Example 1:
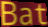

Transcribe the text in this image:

Bat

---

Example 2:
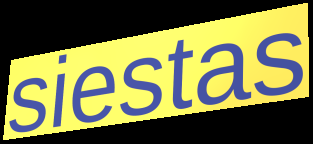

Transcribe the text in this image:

siestas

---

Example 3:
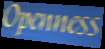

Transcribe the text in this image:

Openness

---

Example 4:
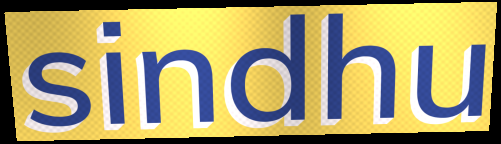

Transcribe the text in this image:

sindhu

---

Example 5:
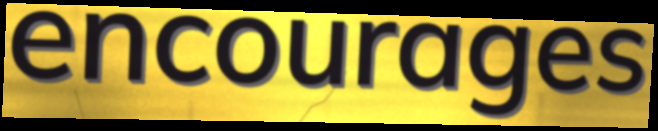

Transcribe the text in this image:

encourages